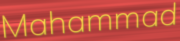
Mahammad